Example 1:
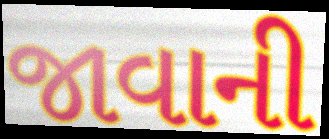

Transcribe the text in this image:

જાવાની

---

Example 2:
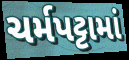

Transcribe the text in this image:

ચર્મપટ્ટામાં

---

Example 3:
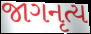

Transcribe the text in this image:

જાગનૃત્ય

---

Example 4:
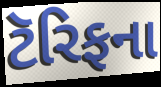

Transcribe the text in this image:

ટૅરિફના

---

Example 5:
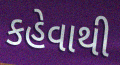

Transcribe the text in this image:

કહેવાથી